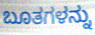
ಬೂತಗಳನ್ನು